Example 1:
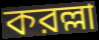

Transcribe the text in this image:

করল্লা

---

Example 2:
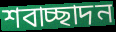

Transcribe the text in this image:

শবাচ্ছাদন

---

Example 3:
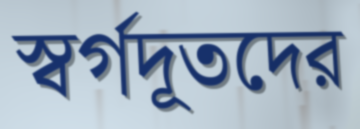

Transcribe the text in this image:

স্বর্গদূতদের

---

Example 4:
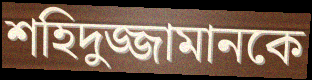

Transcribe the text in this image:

শহিদুজ্জামানকে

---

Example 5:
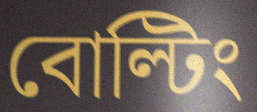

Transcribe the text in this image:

বোল্টিং